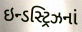
ઇન્ડસ્ટ્રિઝનાં